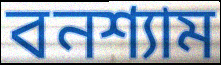
বনশ্যাম